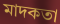
মাদকতা